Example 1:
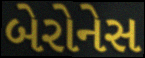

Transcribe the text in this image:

બેરોનેસ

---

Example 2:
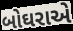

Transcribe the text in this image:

બોઘરાએ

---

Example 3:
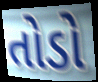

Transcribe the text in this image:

તોડો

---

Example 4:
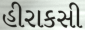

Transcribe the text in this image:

હીરાકસી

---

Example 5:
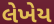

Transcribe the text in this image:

લેખેય